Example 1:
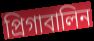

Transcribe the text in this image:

প্রিগাবালিন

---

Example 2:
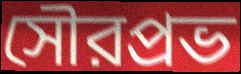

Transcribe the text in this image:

সৌরপ্রভ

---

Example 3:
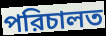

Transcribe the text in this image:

পরিচালত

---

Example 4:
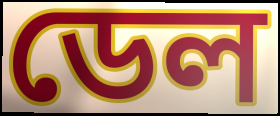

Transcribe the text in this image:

ডেল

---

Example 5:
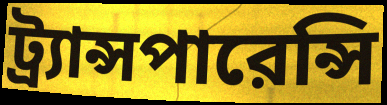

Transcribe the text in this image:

ট্র্যান্সপারেন্সি